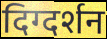
दिग्दर्शन